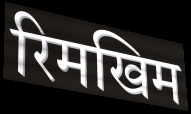
रिमखिम